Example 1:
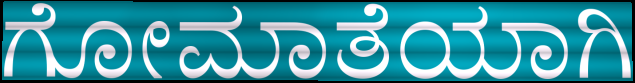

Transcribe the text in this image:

ಗೋಮಾತೆಯಾಗಿ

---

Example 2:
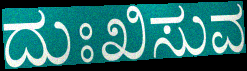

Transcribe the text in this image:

ದುಃಖಿಸುವ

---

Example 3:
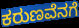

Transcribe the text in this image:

ಕರುಣವೆನಗೆ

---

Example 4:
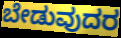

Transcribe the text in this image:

ಬೇಡುವುದರ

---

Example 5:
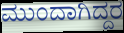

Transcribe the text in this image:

ಮುಂದಾಗಿದ್ದರ